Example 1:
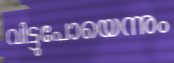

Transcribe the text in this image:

വിട്ടുപോയെന്നും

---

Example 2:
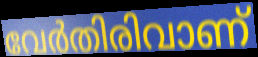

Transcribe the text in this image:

വേർതിരിവാണ്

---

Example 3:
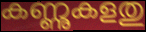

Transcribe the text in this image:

കണ്ണുകളതു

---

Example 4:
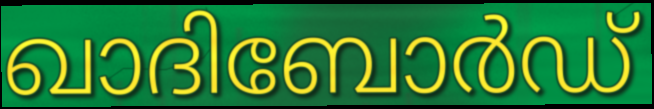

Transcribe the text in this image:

ഖാദിബോർഡ്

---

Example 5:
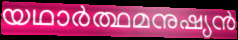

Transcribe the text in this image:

യഥാർത്ഥമനുഷ്യൻ